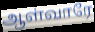
ஆள்வாரே